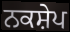
ਨਕਸ਼ੇਪ